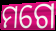
ମଗେ